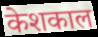
केशकाल